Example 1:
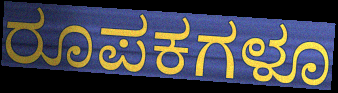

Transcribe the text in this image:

ರೂಪಕಗಳೂ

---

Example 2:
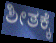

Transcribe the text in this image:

ಶೀತಕ್ಕೆ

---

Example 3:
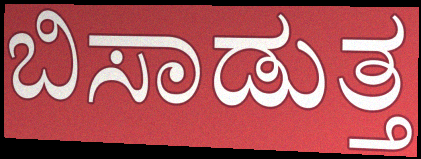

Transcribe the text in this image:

ಬಿಸಾಡುತ್ತ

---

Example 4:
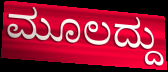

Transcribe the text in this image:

ಮೂಲದ್ದು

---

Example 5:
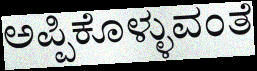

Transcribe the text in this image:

ಅಪ್ಪಿಕೊಳ್ಳುವಂತೆ